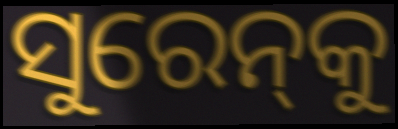
ସୁରେନ୍‌କୁ